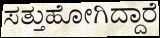
ಸತ್ತುಹೋಗಿದ್ದಾರೆ